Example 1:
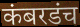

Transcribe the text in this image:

कंबरडंच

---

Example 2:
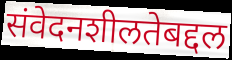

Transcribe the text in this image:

संवेदनशीलतेबद्दल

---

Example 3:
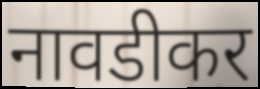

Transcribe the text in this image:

नावडीकर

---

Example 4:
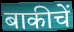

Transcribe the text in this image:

बाकीचें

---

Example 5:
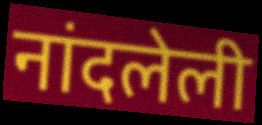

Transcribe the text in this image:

नांदलेली